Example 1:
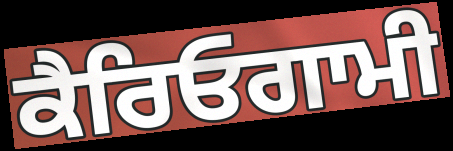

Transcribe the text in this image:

ਕੈਰਿਓਗਾਮੀ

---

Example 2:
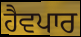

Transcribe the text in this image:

ਹੈਵਪਾਰ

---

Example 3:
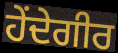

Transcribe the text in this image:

ਹੇਂਦੇਗੀਰ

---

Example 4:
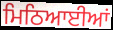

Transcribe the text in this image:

ਮਿਠਿਆਈਆਂ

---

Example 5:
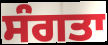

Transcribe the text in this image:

ਸੰਗਤਾ